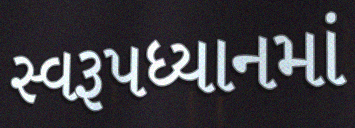
સ્વરૂપધ્યાનમાં